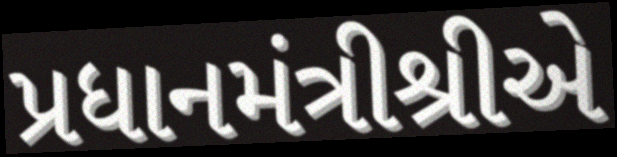
પ્રધાનમંત્રીશ્રીએ